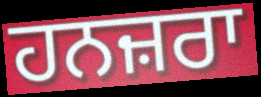
ਹਨਜ਼ਰਾ